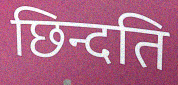
छिन्दति